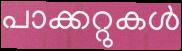
പാക്കറ്റുകൾ